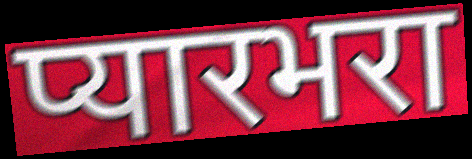
प्यारभरा